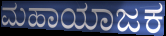
ಮಹಾಯಾಜಕ